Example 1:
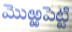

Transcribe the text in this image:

మొఱ్ఱపెట్టి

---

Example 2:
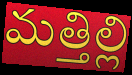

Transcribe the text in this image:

మత్తిల్లి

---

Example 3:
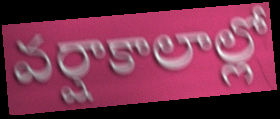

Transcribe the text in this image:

వర్షాకాలాల్లో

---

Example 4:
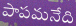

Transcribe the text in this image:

పాపమనేది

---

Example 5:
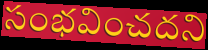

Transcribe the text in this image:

సంభవించదని